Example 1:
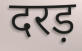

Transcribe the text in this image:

दरड़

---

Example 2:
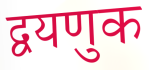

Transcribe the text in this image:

द्वयणुक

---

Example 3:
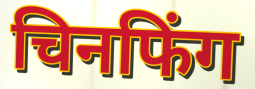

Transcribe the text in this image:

चिनफिंग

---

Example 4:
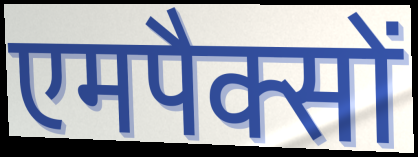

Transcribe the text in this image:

एमपैक्सों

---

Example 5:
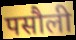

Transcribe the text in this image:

पसौली